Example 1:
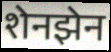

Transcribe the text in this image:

शेनझेन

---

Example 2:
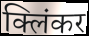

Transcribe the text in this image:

क्लिंकर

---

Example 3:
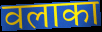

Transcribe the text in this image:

वलाका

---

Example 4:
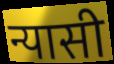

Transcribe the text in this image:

न्यासी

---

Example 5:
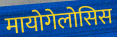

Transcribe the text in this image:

मायोगेलोसिस